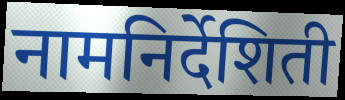
नामनिर्देशिती